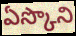
ఏస్కొని